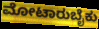
ಮೋಟಾರುಬೈಕು